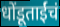
धोंडूताईंचं